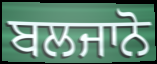
ਬਲਜਾਨੋ